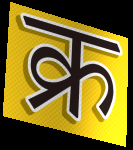
क्र